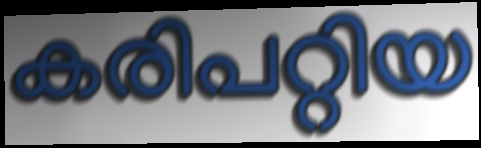
കരിപറ്റിയ